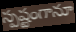
స్పష్టంగానూ